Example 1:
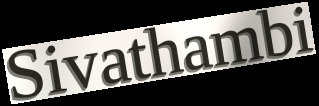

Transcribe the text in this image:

Sivathambi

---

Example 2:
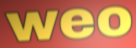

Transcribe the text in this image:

weo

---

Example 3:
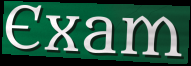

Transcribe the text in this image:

Exam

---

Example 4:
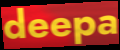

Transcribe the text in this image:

deepa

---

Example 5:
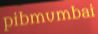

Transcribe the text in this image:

pibmumbai